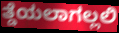
ತ್ಡೆಯಲಾಗಲ್ಲಲಿ